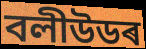
বলীউডৰ